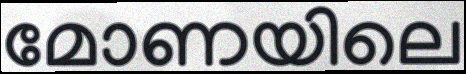
മോണയിലെ